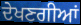
ਦੇਖਣਗੀਆਂ